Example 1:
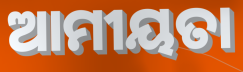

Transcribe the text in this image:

ଆମୀୟତା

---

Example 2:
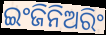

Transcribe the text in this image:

ଇଂଜିନିଅରିଂ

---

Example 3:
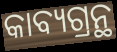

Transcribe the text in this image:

କାବ୍ୟଗ୍ରନ୍ଥ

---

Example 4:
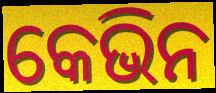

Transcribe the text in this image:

କେଭିନ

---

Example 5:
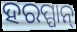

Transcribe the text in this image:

ହରପ୍ପାନ୍